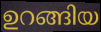
ഉറങ്ങിയ